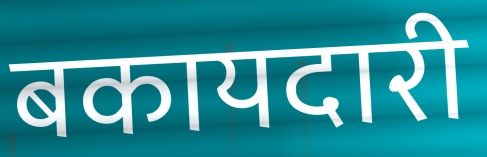
बकायदारी